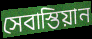
সেবাস্তিয়ান